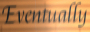
Eventually